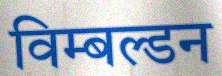
विम्बल्डन